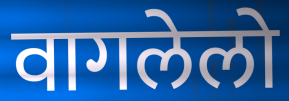
वागलेलो